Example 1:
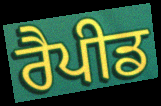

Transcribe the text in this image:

ਰੈਪੀਡ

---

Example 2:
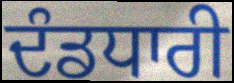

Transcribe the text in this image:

ਦੰਡਧਾਰੀ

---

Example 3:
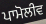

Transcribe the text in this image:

ਪਾਮੋਲੀਵ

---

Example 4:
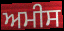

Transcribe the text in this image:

ਅਮੀਸ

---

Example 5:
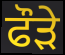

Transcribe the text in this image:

ਫੌੜੇ